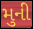
મુની